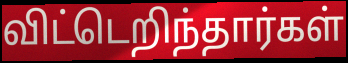
விட்டெறிந்தார்கள்